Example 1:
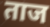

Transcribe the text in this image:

ताज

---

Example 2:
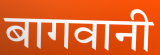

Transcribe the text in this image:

बागवानी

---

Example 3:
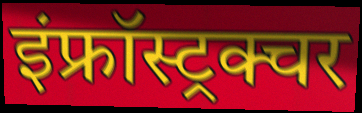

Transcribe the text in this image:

इंफ्रॉस्ट्रक्चर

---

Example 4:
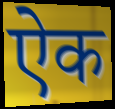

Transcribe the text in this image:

ऐक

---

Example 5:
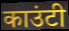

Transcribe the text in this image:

काउंटी